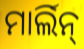
ମାର୍ଲିନ୍